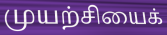
முயற்சியைக்